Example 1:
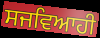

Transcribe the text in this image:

ਸਜਵਿਆਹੀ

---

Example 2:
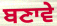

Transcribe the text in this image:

ਬਣਾਵੇ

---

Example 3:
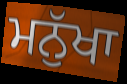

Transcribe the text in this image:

ਮਨੁੱਖਾ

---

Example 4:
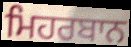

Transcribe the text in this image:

ਮਿਹਰਬਾਨ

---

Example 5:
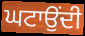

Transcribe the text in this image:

ਘਟਾਉਂਦੀ